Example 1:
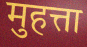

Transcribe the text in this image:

मुहत्ता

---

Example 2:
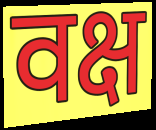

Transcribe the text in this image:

वक्ष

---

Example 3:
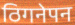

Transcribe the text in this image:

ठिगनेपन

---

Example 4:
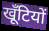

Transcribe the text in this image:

खूँटियों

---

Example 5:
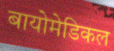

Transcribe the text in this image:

बायोमेडिकल